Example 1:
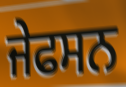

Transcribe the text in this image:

ਜੇਫਸਨ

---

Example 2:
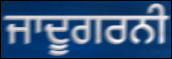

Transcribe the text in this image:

ਜਾਦੂਗਰਨੀ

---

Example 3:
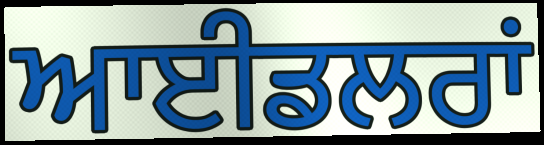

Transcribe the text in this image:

ਆਈਡਲਰਾਂ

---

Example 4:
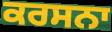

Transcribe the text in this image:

ਕਰਸਨਾ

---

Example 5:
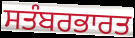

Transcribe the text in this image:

ਸਤੰਬਰਭਾਰਤ